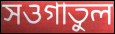
সওগাতুল